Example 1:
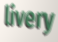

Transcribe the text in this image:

livery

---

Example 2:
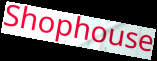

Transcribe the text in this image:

Shophouse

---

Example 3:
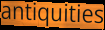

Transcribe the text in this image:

antiquities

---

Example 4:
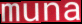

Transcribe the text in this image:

muna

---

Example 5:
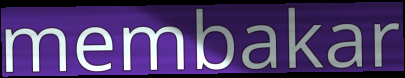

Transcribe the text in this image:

membakar